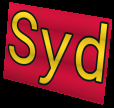
Syd